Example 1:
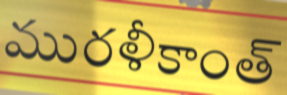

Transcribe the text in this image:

మురళీకాంత్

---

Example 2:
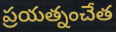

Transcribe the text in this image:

ప్రయత్నంచేత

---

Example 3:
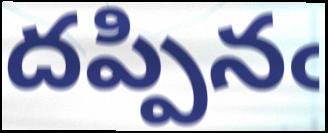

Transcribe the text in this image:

దప్పినఁ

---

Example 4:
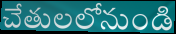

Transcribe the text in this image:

చేతులలోనుండి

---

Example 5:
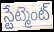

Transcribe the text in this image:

స్టేట్మెంట్